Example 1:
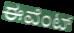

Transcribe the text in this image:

ಈವೆಂಟ್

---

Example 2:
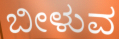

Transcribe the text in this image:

ಬೀಳುವ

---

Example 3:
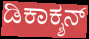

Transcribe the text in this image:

ಡಿಕಾಕ್ಶನ್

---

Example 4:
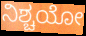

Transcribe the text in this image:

ನಿಶ್ಚಯೋ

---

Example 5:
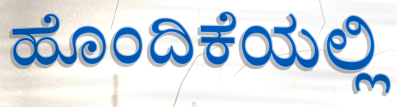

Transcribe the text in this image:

ಹೊಂದಿಕೆಯಲ್ಲಿ